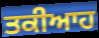
ਤਕੀਆਹ